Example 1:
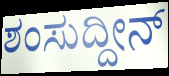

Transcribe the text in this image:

ಶಂಸುದ್ದೀನ್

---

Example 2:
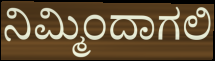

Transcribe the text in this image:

ನಿಮ್ಮಿಂದಾಗಲಿ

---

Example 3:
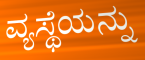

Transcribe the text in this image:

ವ್ಯಸ್ಥೆಯನ್ನು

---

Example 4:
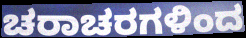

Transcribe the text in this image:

ಚರಾಚರಗಳಿಂದ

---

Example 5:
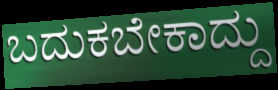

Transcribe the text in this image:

ಬದುಕಬೇಕಾದ್ದು